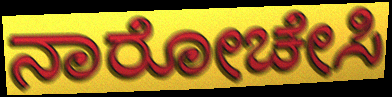
ನಾರೋಚೇಸಿ